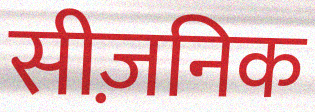
सीज़निक